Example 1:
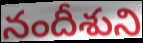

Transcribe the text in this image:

నందీశుని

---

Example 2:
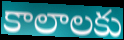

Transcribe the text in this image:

కాలాలకు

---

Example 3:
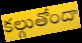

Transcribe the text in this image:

కల్గుతోందా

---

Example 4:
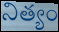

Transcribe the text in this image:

నిత్యం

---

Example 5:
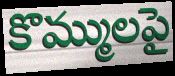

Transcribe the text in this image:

కొమ్ములపై